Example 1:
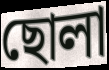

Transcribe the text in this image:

ছোলা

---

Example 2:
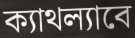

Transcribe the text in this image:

ক্যাথল্যাবে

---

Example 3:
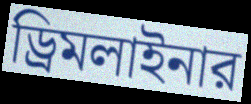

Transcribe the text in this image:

ড্রিমলাইনার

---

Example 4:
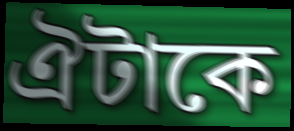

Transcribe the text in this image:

ঐটাকে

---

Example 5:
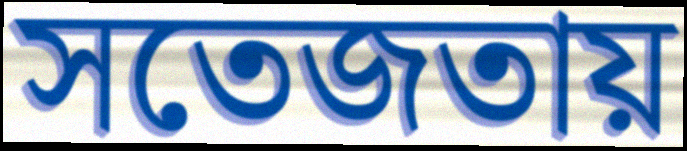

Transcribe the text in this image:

সতেজতায়